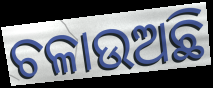
ଚଳାଉଅଛି